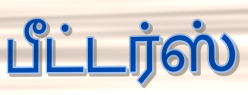
பீட்டர்ஸ்